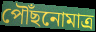
পৌঁছনোমাত্র